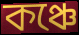
কঞ্চে